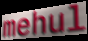
mehul